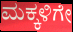
ಮಕ್ಕಳಿಗೇ